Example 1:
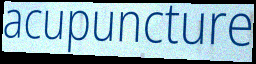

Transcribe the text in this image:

acupuncture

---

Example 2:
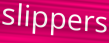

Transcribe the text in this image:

slippers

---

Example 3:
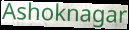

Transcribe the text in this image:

Ashoknagar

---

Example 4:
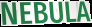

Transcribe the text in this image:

NEBULA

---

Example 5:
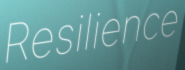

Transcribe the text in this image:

Resilience